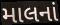
માલનાં